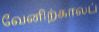
வேனிற்காலப்